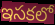
ఇసకలో